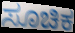
ಸೂಚಿಕ